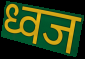
ध्वज